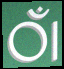
ଠାଁ